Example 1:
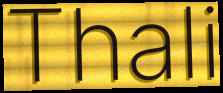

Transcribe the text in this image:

Thali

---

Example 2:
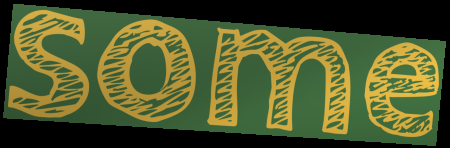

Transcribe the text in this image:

some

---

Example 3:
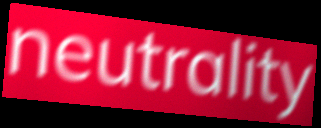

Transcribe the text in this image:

neutrality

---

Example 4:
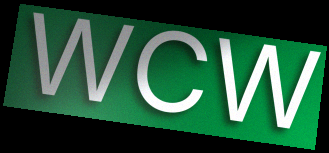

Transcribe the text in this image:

WCW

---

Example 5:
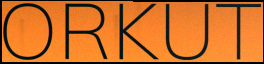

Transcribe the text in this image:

ORKUT